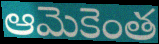
ఆమెకెంత